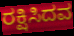
ರಕ್ಷಿಸಿದವ